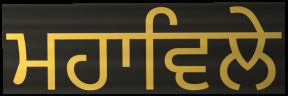
ਮਹਾਵਿਲੇ